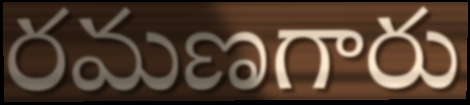
రమణగారు